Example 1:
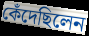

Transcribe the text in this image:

কেঁদেছিলেন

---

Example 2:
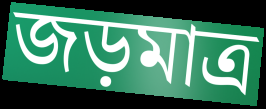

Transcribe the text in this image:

জড়মাত্র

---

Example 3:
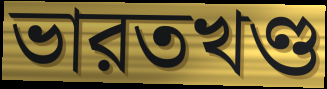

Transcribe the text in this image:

ভারতখণ্ড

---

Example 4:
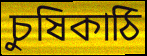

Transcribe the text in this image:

চুষিকাঠি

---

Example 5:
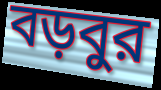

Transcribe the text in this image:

বড়বুর